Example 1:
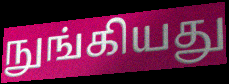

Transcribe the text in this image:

நுங்கியது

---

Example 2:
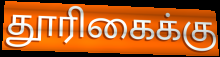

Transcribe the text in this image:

தூரிகைக்கு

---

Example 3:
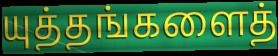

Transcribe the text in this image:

யுத்தங்களைத்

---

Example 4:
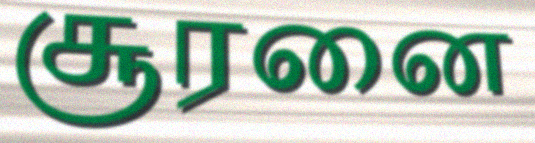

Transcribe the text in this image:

சூரனை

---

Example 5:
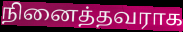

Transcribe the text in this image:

நினைத்தவராக